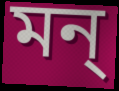
মন্